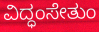
ವಿದ್ಧಂಸೇತುಂ